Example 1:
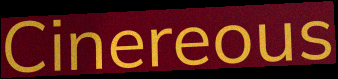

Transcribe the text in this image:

Cinereous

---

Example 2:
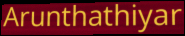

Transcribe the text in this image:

Arunthathiyar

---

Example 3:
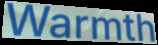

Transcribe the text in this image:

Warmth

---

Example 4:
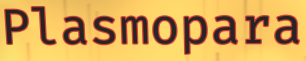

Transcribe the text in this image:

Plasmopara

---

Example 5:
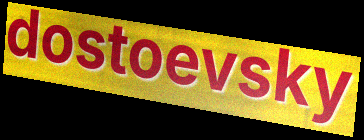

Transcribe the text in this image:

dostoevsky